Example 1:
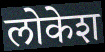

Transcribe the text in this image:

लोकेश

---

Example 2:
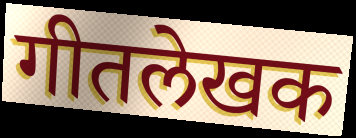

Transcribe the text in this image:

गीतलेखक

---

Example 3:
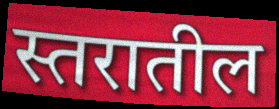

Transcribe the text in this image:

स्तरातील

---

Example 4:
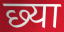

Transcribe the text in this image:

छ्या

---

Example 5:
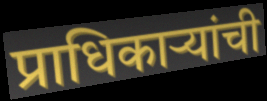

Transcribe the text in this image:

प्राधिकाऱ्यांची